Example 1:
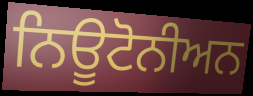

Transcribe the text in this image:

ਨਿਊਟੋਨੀਅਨ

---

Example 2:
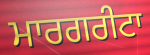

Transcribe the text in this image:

ਮਾਰਗਰੀਟਾ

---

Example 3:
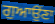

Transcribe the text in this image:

ਗੁਆਉਂਣਾ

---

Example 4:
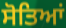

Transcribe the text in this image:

ਸੋਤਿਆਂ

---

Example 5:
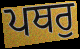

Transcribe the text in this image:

ਪਥਰੁ